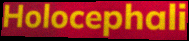
Holocephali